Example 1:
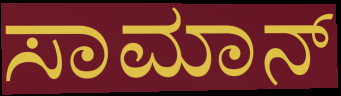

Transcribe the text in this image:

ಸಾಮಾನ್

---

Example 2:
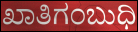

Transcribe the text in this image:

ಖಾತಿಗಂಬುಧಿ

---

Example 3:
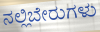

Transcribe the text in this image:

ನಲ್ಲಿಬೇರುಗಳು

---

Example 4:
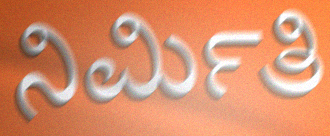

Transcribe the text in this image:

ನಿರ್ಮಿತಿ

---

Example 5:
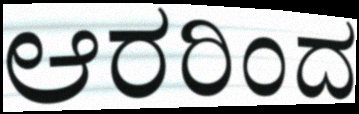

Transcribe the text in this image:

ಆರರಿಂದ